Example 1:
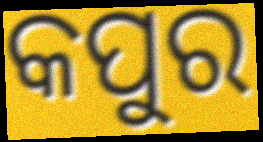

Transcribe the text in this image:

କପୁର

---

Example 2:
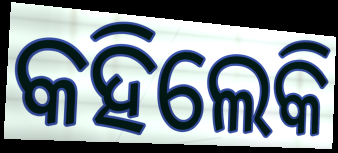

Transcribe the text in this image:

କହିଲେକି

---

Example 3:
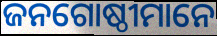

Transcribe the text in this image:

ଜନଗୋଷ୍ଠୀମାନେ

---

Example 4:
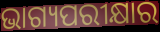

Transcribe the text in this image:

ଭାଗ୍ୟପରୀକ୍ଷାର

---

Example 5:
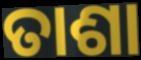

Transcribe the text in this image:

ତାଶା